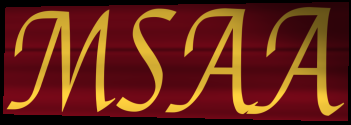
MSAA